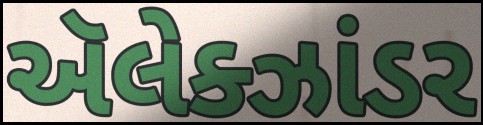
ઍલેક્ઝાંડર